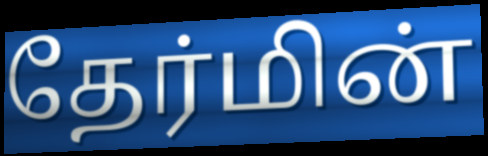
தேர்மின்